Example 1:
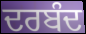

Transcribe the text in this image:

ਦਰਬੰਦ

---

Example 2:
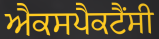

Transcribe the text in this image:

ਐਕਸਪੈਕਟੈਂਸੀ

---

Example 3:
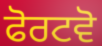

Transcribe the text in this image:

ਫੋਰਟਵੋ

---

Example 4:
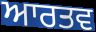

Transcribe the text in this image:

ਆਰਤਵ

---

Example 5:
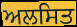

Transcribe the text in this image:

ਅਲਸਿਤ